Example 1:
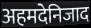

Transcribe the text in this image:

अहमदेनिजाद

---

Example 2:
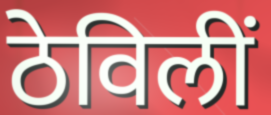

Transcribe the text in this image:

ठेविलीं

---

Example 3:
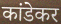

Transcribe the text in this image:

कांडेकर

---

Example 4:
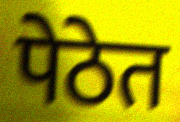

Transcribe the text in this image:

पेठेत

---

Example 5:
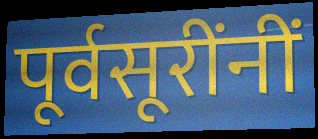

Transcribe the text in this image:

पूर्वसूरींनीं